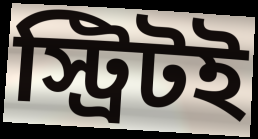
স্ট্রিটই